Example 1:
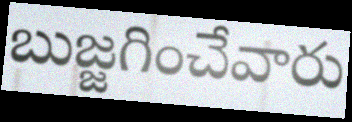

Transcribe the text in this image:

బుజ్జగించేవారు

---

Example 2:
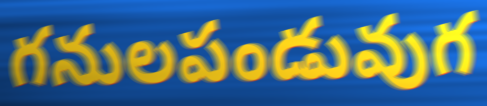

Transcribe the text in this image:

గనులపండువుగ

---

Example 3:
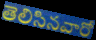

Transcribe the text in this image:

తెలిసినవారో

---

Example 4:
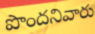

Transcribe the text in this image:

పొందనివారు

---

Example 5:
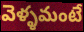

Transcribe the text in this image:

వెళ్ళమంటే